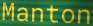
Manton